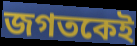
জগতকেই